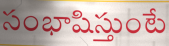
సంభాషిస్తుంటే